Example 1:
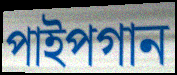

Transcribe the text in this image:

পাইপগান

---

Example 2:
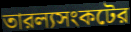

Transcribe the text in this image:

তারল্যসংকটের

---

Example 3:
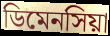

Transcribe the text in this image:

ডিমেনসিয়া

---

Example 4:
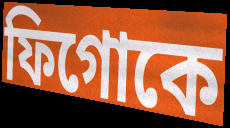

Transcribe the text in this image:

ফিগোকে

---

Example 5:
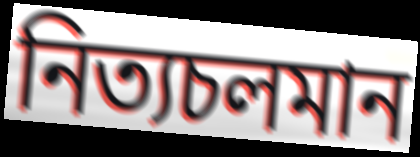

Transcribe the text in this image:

নিত্যচলমান